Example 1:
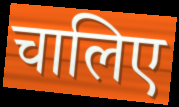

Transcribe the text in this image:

चालिए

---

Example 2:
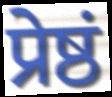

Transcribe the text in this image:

प्रेष्ठं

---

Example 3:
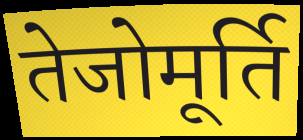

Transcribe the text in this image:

तेजोमूर्ति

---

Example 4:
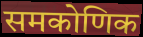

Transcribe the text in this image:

समकोणिक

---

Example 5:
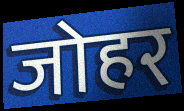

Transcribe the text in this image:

जोहर